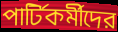
পার্টিকর্মীদের